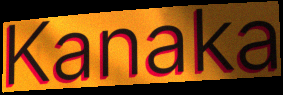
Kanaka